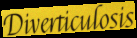
Diverticulosis